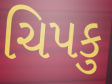
ચિપકુ